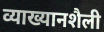
व्याख्यानशैली